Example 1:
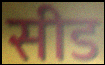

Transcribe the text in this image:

सीड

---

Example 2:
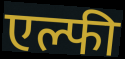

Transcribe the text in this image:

एल्फी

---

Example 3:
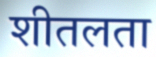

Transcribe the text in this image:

शीतलता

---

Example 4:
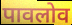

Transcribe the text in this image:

पावलोव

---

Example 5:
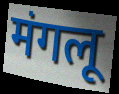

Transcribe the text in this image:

मंगलू